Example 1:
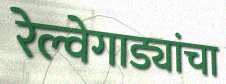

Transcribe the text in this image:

रेल्वेगाड्यांचा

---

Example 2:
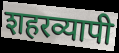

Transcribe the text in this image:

शहरव्यापी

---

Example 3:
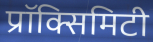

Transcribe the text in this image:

प्रॉक्सिमिटी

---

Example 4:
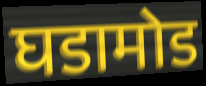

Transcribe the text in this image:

घडामोड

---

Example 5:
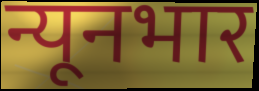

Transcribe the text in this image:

न्यूनभार